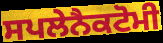
ਸਪਲੇਨੈਕਟੋਮੀ